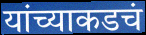
यांच्याकडचं